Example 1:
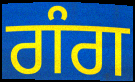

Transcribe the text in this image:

ਗੰਗ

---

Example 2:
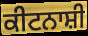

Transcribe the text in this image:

ਕੀਟਨਾਸ਼ੀ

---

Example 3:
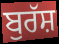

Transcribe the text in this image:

ਬੁਰੱਸ਼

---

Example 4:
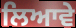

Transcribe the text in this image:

ਲਿਆਵੇ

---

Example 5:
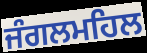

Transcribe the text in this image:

ਜੰਗਲਮਹਿਲ